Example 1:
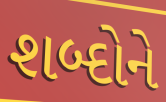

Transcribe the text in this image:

શબ્દોને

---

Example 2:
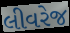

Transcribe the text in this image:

લીવરેજ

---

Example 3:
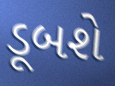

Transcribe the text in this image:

ડૂબશે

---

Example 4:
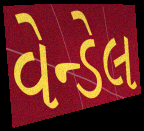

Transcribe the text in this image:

વેન્ડેલ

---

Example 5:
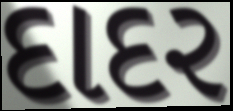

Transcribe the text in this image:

દાદર